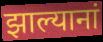
झाल्यानां